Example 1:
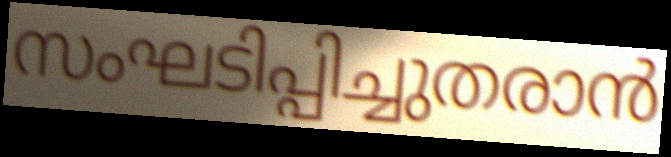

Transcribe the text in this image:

സംഘടിപ്പിച്ചുതരാൻ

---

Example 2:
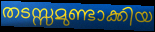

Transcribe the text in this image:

തടസ്സമുണ്ടാക്കിയ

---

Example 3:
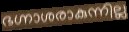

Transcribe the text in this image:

ഭഗ്നാശരാകുന്നില്ല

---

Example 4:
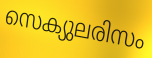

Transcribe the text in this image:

സെക്യുലരിസം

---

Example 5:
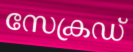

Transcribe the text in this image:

സേക്രഡ്